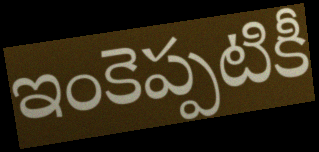
ఇంకెప్పటికీ